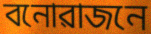
বনোৱাজনে